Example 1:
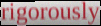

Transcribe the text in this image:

rigorously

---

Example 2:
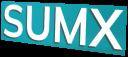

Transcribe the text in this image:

SUMX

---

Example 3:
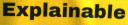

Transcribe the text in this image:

Explainable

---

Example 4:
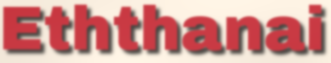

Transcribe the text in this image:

Eththanai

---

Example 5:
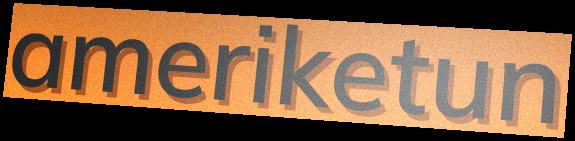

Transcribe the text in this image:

ameriketun